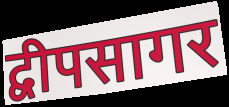
द्वीपसागर